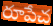
రూపేచ